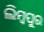
ଲିମ୍ବପୁର